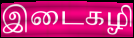
இடைகழி